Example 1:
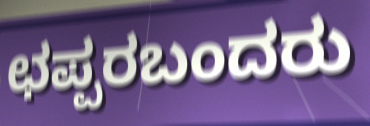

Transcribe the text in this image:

ಛಪ್ಪರಬಂದರು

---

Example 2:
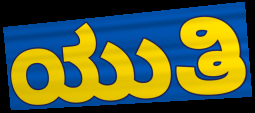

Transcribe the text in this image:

ಯುತಿ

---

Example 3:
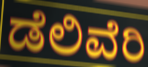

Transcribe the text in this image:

ಡೆಲಿವೆರಿ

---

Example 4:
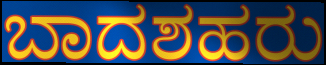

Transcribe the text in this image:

ಬಾದಶಹರು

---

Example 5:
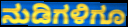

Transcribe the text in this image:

ನುಡಿಗಳಿಗೂ